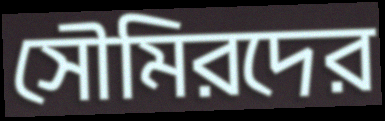
সৌমিরদের